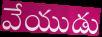
వేయుడు